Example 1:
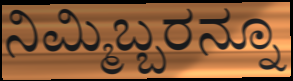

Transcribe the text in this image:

ನಿಮ್ಮಿಬ್ಬರನ್ನೂ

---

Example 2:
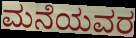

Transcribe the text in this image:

ಮನೆಯವರ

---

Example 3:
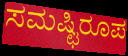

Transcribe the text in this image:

ಸಮಷ್ಟಿರೂಪ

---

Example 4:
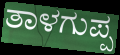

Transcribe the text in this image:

ತಾಳಗುಪ್ಪ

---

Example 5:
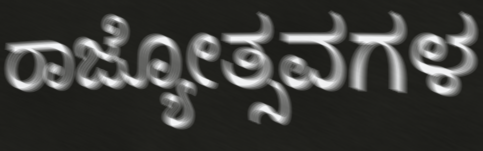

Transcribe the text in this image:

ರಾಜ್ಯೋತ್ಸವಗಳ